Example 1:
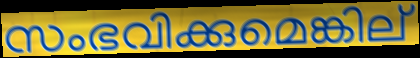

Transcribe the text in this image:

സംഭവിക്കുമെങ്കില്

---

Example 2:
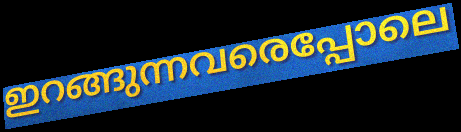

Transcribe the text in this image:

ഇറങ്ങുന്നവരെപ്പോലെ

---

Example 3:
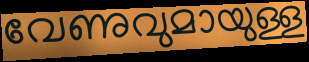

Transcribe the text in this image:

വേണുവുമായുള്ള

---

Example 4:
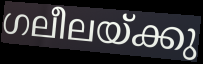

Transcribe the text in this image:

ഗലീലയ്ക്കു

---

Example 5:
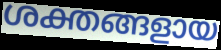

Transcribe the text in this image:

ശക്തങ്ങളായ